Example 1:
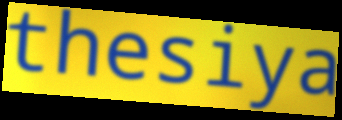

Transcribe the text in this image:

thesiya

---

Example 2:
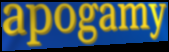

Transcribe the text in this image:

apogamy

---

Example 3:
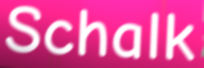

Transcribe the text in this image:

Schalk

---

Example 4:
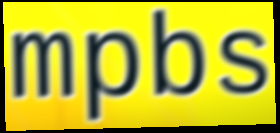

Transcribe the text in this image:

mpbs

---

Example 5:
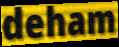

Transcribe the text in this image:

deham